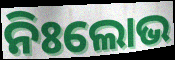
ନିଃଲୋଭ